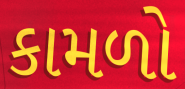
કામળો